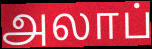
அலாப்